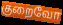
குறைவோ